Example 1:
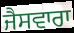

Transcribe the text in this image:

ਜੈਸਵਾਰਾ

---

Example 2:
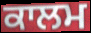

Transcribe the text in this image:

ਕਾਲਮ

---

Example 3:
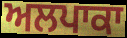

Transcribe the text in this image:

ਅਲਪਾਕਾ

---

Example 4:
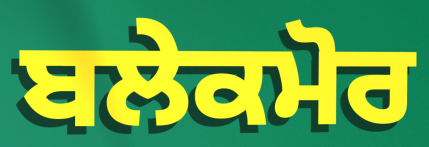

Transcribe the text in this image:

ਬਲੇਕਮੋਰ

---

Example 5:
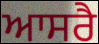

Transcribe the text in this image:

ਆਸਰੈ